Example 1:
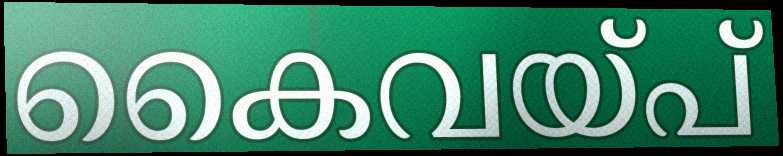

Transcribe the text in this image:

കൈവയ്പ്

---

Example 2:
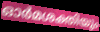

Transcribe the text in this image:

ഓർമശക്തിയും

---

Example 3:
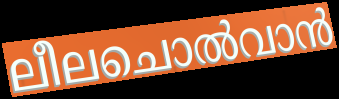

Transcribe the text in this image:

ലീലചൊൽവാൻ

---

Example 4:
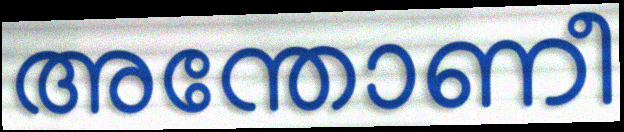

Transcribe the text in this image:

അന്തോണീ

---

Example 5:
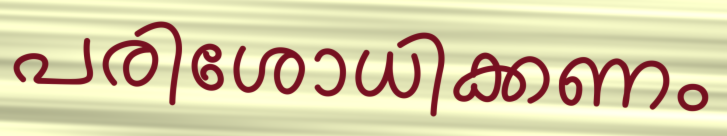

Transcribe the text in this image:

പരിശോധിക്കണം